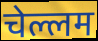
चेल्लम